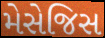
મેસેજિસ